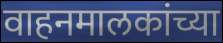
वाहनमालकांच्या